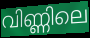
വിണ്ണിലെ